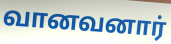
வானவனார்